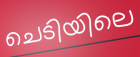
ചെടിയിലെ